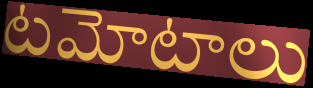
టమోటాలు